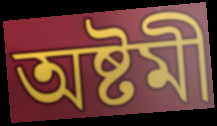
অষ্টমী